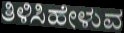
ತಿಳಿಸಿಹೇಳುವ